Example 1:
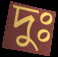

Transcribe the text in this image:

দুঃ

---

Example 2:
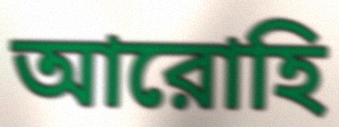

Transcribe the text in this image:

আরোহি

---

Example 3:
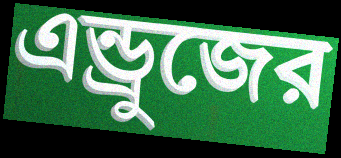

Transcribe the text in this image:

এন্ড্রুজের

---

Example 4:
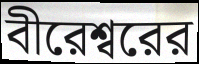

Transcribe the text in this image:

বীরেশ্বরের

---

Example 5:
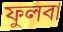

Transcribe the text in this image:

ফুলবা